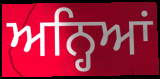
ਅਨ੍ਹਿਆਂ